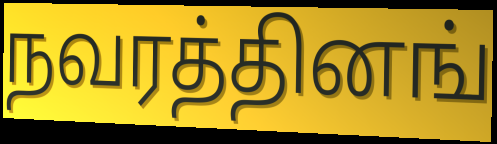
நவரத்தினங்